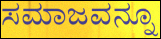
ಸಮಾಜವನ್ನೂ